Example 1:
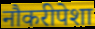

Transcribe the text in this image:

नौकरीपेशा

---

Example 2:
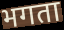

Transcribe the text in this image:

भगता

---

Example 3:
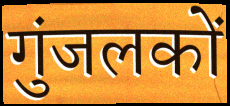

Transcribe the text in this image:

गुंजलकों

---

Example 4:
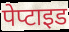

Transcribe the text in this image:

पेप्टाइड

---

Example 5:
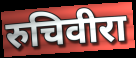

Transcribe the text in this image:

रुचिवीरा